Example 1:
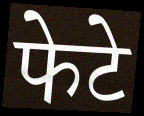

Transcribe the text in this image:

फेटे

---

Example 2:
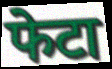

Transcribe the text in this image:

फेटा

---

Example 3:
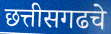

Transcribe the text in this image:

छत्तीसगढचे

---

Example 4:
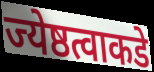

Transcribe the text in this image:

ज्येष्ठत्वाकडे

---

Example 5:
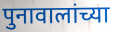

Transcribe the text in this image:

पुनावालांच्या